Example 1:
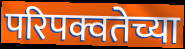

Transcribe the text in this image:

परिपक्वतेच्या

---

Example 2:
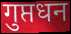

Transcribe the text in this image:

गुप्तधन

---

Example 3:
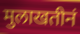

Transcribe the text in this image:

मुलाखतीनं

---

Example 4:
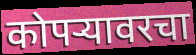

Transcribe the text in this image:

कोपऱ्यावरचा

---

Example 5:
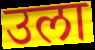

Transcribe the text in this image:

उला